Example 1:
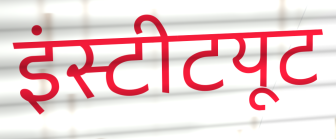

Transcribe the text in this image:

इंस्‍टीटयूट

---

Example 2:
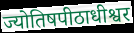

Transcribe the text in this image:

ज्योतिषपीठाधीश्वर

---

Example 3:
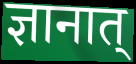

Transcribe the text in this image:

ज्ञानात्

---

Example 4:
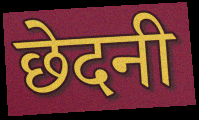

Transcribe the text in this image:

छेदनी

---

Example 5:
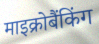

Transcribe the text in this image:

माइक्रोबैंकिंग